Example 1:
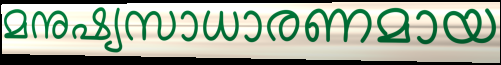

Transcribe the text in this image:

മനുഷ്യസാധാരണമായ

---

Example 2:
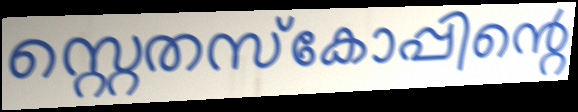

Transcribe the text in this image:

സ്റ്റെതസ്കോപ്പിന്റെ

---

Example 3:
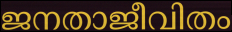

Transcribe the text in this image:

ജനതാജീവിതം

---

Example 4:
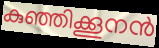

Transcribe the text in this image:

കുഞ്ഞിക്കൂനൻ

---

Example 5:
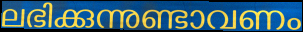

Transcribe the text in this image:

ലഭിക്കുന്നുണ്ടാവണം